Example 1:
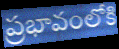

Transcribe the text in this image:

ప్రభావంలోకి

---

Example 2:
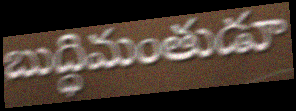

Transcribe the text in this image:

బుద్ధిమంతుడూ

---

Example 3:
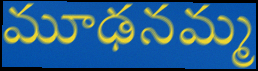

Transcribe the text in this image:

మూఢనమ్మ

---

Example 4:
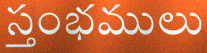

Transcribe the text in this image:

స్తంభములు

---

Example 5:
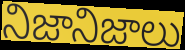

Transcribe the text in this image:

నిజానిజాలు